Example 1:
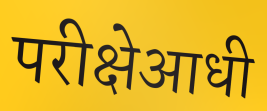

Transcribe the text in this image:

परीक्षेआधी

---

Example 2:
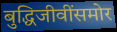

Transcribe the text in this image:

बुद्धिजीवींसमोर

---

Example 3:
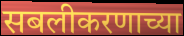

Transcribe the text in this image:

सबलीकरणाच्या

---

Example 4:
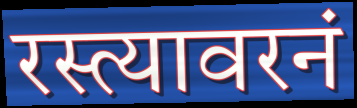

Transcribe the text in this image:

रस्त्यावरनं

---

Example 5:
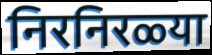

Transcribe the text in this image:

निरनिरळ्या